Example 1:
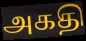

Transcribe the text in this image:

அகதி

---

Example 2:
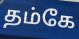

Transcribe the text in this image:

தம்கே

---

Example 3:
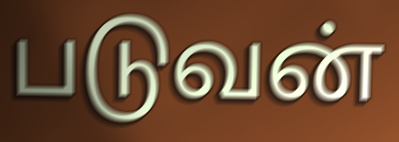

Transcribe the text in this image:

படுவன்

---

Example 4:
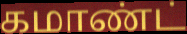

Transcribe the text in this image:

கமாண்ட்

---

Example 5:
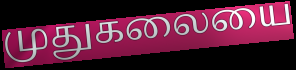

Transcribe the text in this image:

முதுகலையை